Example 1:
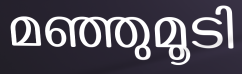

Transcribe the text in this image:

മഞ്ഞുമൂടി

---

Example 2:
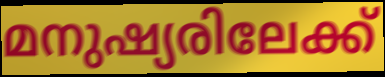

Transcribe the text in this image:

മനുഷ്യരിലേക്ക്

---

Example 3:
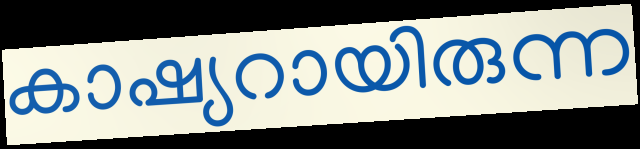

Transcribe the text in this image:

കാഷ്യറായിരുന്ന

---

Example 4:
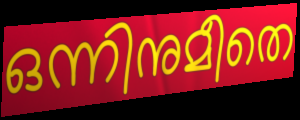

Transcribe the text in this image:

ഒന്നിനുമീതെ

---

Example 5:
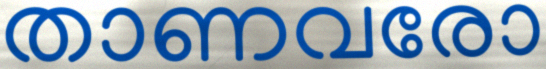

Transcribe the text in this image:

താണവരോ